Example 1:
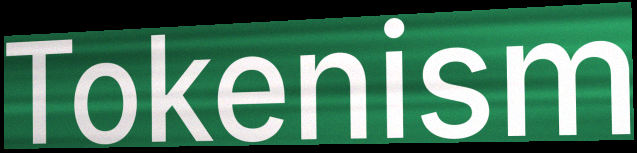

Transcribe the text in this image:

Tokenism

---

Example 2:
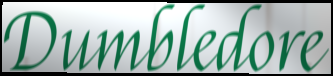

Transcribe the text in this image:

Dumbledore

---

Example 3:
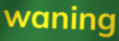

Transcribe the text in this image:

waning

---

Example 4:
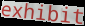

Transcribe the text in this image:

exhibit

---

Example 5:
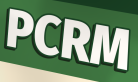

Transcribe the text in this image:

PCRM